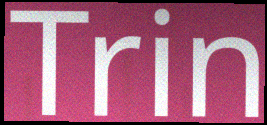
Trin